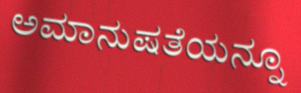
ಅಮಾನುಷತೆಯನ್ನೂ